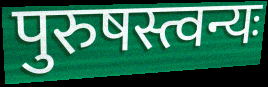
पुरुषस्त्वन्यः